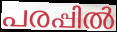
പരപ്പിൽ